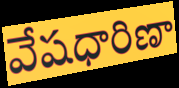
వేషధారిణా